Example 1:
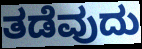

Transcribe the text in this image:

ತಡೆವುದು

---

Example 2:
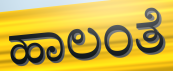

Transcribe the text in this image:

ಹಾಲಂತೆ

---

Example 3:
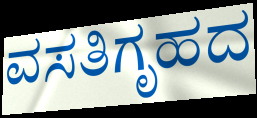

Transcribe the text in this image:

ವಸತಿಗೃಹದ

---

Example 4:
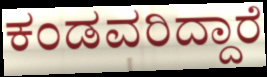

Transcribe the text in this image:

ಕಂಡವರಿದ್ದಾರೆ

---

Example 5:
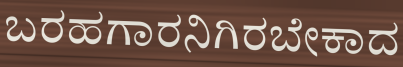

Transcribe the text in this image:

ಬರಹಗಾರನಿಗಿರಬೇಕಾದ